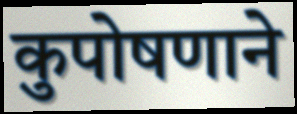
कुपोषणाने